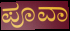
ಪೂವಾ